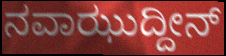
ನವಾಝುದ್ದೀನ್